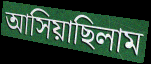
আসিয়াছিলাম